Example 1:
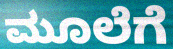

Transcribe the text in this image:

ಮೂಲೆಗೆ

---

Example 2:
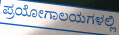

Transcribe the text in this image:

ಪ್ರಯೋಗಾಲಯಗಳಲ್ಲಿ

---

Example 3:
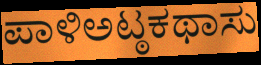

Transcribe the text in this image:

ಪಾಳಿಅಟ್ಠಕಥಾಸು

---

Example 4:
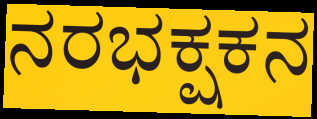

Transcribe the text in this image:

ನರಭಕ್ಷಕನ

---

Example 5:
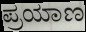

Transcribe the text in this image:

ಪ್ರಯಾಣ